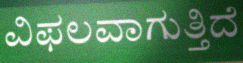
ವಿಫಲವಾಗುತ್ತಿದೆ